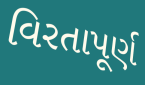
વિરતાપૂર્ણ